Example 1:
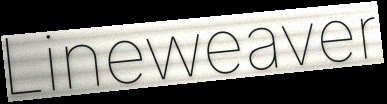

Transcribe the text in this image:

Lineweaver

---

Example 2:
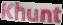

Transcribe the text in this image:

Khunt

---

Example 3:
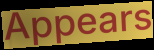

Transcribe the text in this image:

Appears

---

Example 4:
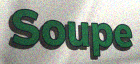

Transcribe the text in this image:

Soupe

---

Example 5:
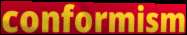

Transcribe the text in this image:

conformism